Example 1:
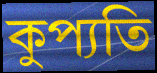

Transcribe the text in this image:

কুপ্যতি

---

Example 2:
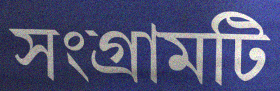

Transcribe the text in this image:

সংগ্রামটি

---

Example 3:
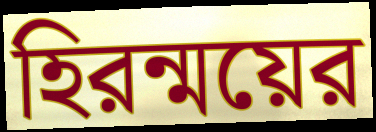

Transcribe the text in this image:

হিরন্ময়ের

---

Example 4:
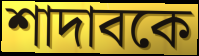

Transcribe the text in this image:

শাদাবকে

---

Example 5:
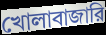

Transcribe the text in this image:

খোলাবাজারি